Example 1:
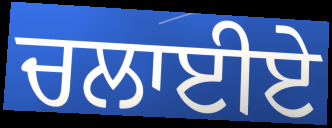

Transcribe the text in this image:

ਚਲਾਈਏ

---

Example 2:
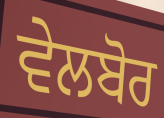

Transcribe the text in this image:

ਵੇਲਬੋਰ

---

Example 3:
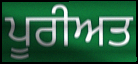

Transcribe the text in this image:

ਪੂਰੀਅਤ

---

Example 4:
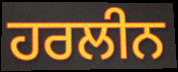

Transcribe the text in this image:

ਹਰਲੀਨ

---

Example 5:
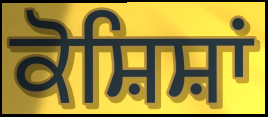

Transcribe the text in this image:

ਕੋਸ਼ਿਸ਼ਾਂ